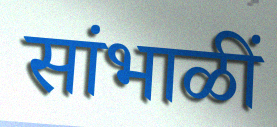
सांभाळीं